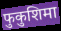
फुकुशिमा